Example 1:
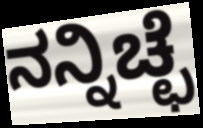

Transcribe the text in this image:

ನನ್ನಿಚ್ಛೆ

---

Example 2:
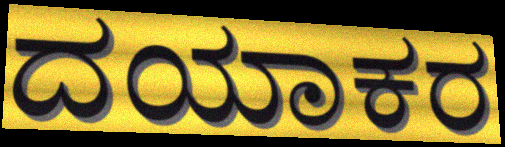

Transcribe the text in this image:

ದಯಾಕರ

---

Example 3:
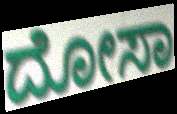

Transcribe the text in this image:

ದೋಸಾ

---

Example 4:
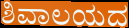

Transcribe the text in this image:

ಶಿವಾಲಯದ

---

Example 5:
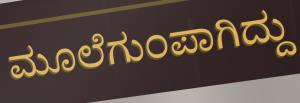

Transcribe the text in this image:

ಮೂಲೆಗುಂಪಾಗಿದ್ದು